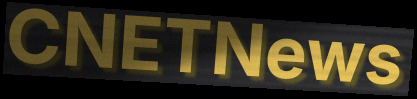
CNETNews